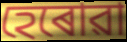
হেৰোৱা